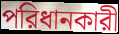
পরিধানকারী